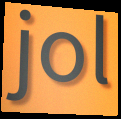
jol